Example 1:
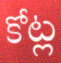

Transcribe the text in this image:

కోట్ల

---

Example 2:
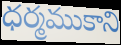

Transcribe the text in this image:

ధర్మముకాని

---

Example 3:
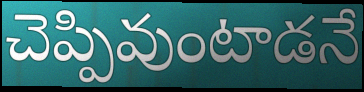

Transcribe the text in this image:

చెప్పివుంటాడనే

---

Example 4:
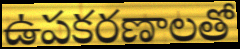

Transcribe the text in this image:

ఉపకరణాలతో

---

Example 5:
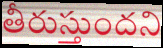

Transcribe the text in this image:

తీరుస్తుందని